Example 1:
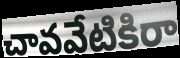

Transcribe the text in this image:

చావవేటికిరా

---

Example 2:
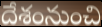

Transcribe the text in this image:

దేశంనుంచి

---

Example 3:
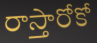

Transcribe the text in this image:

రాస్తారోకో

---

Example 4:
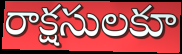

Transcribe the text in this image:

రాక్షసులకూ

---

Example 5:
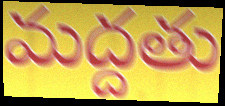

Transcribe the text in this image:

మద్దతు